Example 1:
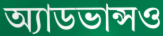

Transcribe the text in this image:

অ্যাডভান্সও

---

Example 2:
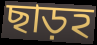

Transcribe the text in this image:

ছাড়হ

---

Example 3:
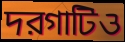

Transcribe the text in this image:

দরগাটিও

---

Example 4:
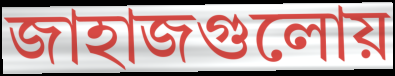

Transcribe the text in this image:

জাহাজগুলোয়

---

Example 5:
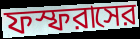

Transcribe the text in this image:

ফস্ফরাসের